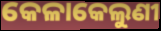
କେଳାକେଲୁଣୀ